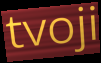
tvoji